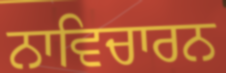
ਨਾਵਿਚਾਰਨ